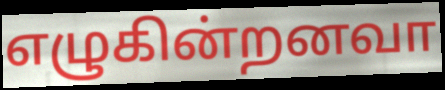
எழுகின்றனவா